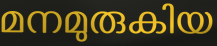
മനമുരുകിയ